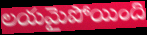
లయమైపోయింది